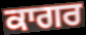
ਕਾਗਰ